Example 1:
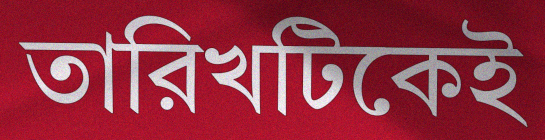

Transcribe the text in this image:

তারিখটিকেই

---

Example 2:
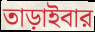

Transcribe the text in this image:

তাড়াইবার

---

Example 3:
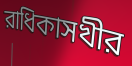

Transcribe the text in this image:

রাধিকাসখীর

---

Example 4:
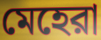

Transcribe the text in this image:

মেহেরা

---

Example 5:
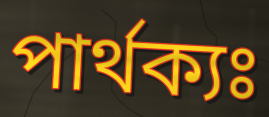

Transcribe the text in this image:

পার্থক্যঃ